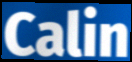
Calin